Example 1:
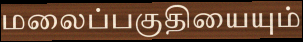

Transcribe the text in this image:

மலைப்பகுதியையும்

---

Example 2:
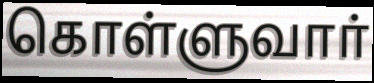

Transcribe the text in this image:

கொள்ளுவார்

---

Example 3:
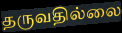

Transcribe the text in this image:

தருவதில்லை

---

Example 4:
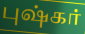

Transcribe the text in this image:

புஷ்கர்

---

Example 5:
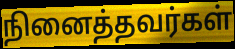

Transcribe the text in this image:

நினைத்தவர்கள்